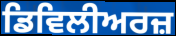
ਡਿਵਿਲੀਅਰਜ਼